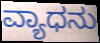
ವ್ಯಾಧನು